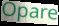
Opare